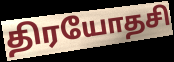
திரயோதசி